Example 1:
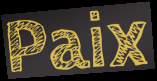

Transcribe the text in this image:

Paix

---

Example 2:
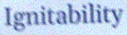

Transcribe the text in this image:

Ignitability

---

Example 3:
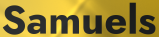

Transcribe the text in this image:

Samuels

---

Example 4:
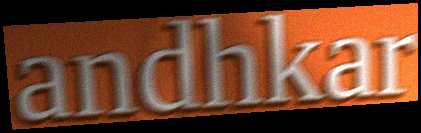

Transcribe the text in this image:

andhkar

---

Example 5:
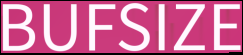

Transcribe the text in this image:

BUFSIZE